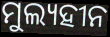
ମୁଲ୍ୟହୀନ